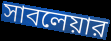
সাবলেয়ার